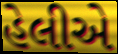
હેલીએ